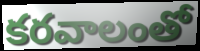
కరవాలంతో